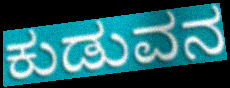
ಕುಡುವನ